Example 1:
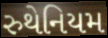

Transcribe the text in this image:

રુથેનિયમ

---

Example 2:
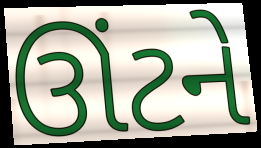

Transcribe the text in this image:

ઊંટને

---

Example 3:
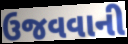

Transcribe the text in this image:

ઉજવવાની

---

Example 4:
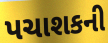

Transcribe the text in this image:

પચાશકની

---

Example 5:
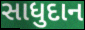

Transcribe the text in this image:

સાધુદાન